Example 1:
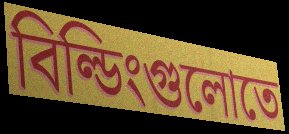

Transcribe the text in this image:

বিল্ডিংগুলোতে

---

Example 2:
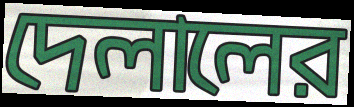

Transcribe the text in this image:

দেলালের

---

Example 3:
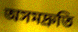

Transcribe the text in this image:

অসমদ্রুতি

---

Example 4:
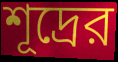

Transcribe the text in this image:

শূদ্রের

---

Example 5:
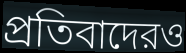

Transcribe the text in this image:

প্রতিবাদেরও